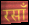
रसाँ